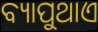
ବ୍ୟାପୁଥାଏ